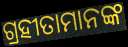
ଗ୍ରହୀତାମାନଙ୍କ